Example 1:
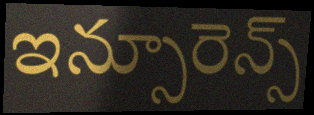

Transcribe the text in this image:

ఇన్సూరెన్స్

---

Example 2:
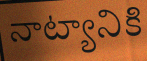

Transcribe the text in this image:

నాట్యానికి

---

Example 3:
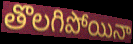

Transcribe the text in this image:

తొలగిపోయినా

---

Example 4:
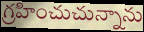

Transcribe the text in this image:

గ్రహించుచున్నాను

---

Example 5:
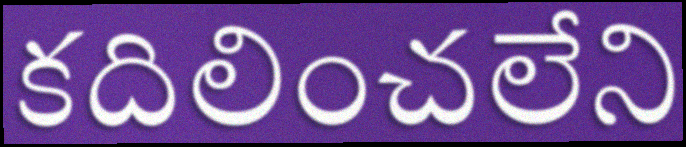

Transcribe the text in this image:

కదిలించలేని